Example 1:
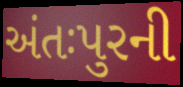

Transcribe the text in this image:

અંતઃપુરની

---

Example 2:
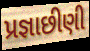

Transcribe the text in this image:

પ્રજ્ઞાછીણી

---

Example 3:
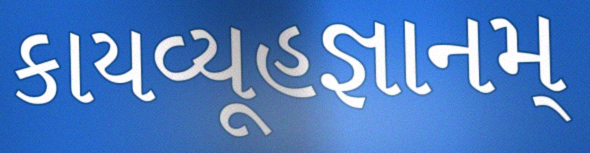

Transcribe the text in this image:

કાયવ્યૂહજ્ઞાનમ્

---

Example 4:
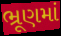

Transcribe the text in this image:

ભ્રૂણમાં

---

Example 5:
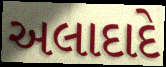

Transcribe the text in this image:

અલાદાદે